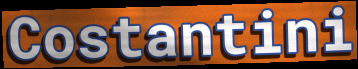
Costantini